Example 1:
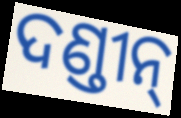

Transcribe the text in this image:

ଦଣ୍ଡୀନ୍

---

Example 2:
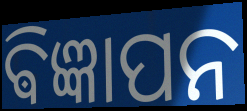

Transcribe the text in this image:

ଵିଜ୍ଞାପନ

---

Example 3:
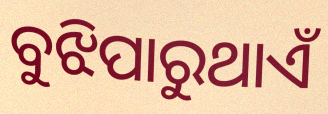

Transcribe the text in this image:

ବୁଝିପାରୁଥାଏଁ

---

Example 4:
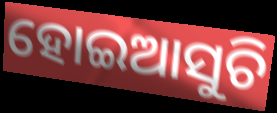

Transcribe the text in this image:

ହୋଇଆସୁଚି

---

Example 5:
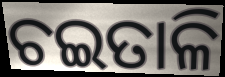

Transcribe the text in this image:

ଚଇତାଳି